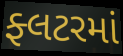
ફ્લટરમાં